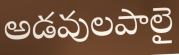
అడవులపాలై